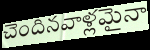
చెందినవాళ్లమైనా